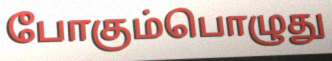
போகும்பொழுது